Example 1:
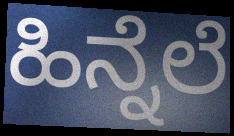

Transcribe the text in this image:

ಹಿನ್ನೆಲೆ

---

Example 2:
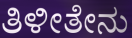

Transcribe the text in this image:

ತಿಳೀತೇನು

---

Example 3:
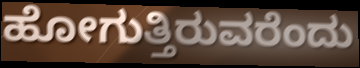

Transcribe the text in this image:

ಹೋಗುತ್ತಿರುವರೆಂದು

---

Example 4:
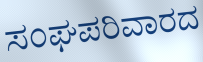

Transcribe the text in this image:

ಸಂಘಪರಿವಾರದ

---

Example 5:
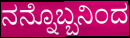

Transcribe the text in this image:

ನನ್ನೊಬ್ಬನಿಂದ